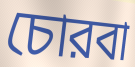
চোরবা